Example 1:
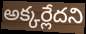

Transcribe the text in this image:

అక్కర్లేదని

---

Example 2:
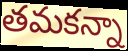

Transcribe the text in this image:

తమకన్నా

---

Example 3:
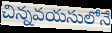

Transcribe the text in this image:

చిన్నవయసులోనే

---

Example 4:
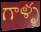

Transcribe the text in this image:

గాళ్ళ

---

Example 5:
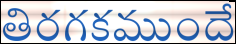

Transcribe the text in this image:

తిరగకముందే